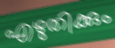
എഴുതിക്കും